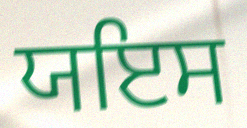
ਯਇਸ